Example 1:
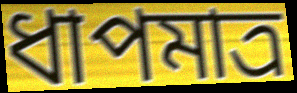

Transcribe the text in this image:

ধাপমাত্র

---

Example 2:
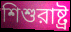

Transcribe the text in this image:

শিশুরাষ্ট্র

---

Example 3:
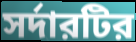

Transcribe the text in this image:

সর্দারটির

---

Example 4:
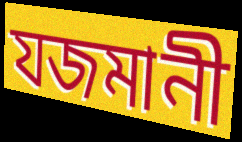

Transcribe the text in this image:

যজমানী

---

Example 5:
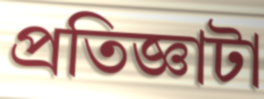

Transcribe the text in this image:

প্রতিজ্ঞাটা